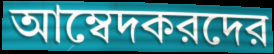
আম্বেদকরদের